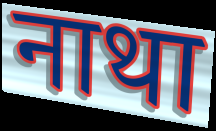
नाथा